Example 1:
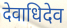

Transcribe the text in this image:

देवाधिदेव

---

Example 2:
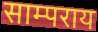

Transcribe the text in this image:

साम्पराय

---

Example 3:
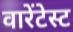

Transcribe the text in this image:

वारेंटेस्ट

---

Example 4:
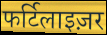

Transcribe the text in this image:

फर्टिलाइज़र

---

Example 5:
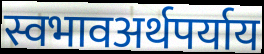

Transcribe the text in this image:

स्वभावअर्थपर्याय